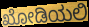
ಖೋಡಿಯಲಿ